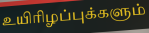
உயிரிழப்புக்களும்